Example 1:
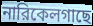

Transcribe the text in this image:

নারিকেলগাছে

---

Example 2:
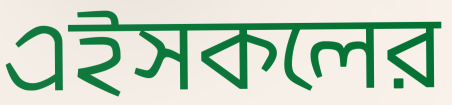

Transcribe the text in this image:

এইসকলের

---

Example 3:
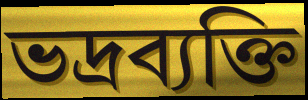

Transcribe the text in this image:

ভদ্রব্যক্তি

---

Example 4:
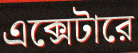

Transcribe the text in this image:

এক্সেটারে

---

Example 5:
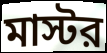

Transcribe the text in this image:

মাস্টর